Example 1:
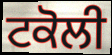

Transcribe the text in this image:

ਟਕੋਲੀ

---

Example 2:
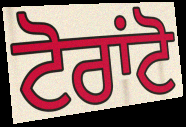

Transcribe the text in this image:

ਟੋਰਾਂਟੋ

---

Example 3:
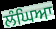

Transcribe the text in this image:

ਲੰਘਿਆ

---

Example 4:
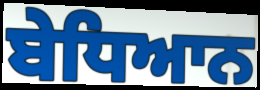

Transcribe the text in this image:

ਬੇਧਿਆਨ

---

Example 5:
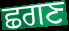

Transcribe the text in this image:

ਛਗਣ